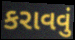
કરાવવું